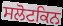
ਸਲੋਟਕਿਨ